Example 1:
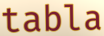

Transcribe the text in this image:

tabla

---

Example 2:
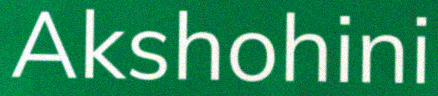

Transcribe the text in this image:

Akshohini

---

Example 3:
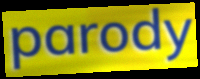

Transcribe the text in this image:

parody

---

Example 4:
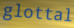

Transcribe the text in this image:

glottal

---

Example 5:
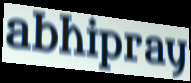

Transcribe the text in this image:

abhipray